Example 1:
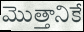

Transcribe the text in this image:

మొత్తానికే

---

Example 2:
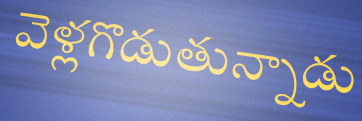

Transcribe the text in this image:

వెళ్లగొడుతున్నాడు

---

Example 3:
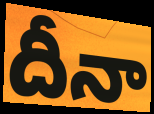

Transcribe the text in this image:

దీనా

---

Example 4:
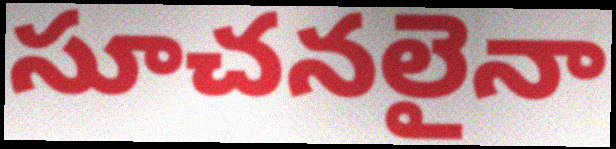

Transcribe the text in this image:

సూచనలైనా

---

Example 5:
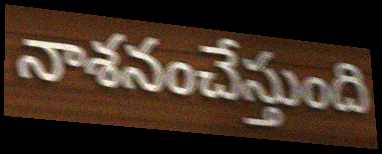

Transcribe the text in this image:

నాశనంచేస్తుంది